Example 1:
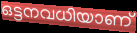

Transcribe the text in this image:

ഒട്ടനവധിയാണ്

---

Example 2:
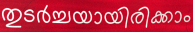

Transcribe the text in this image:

തുടർച്ചയായിരിക്കാം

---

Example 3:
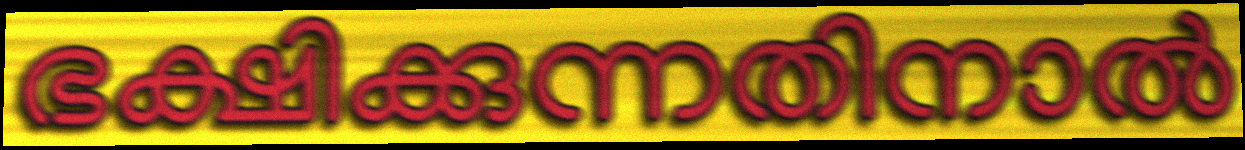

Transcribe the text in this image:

ഭക്ഷിക്കുന്നതിനാൽ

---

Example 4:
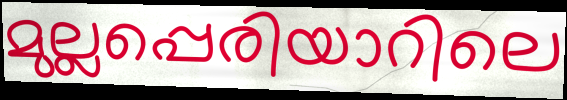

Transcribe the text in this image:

മുല്ലപ്പെരിയാറിലെ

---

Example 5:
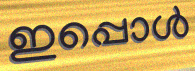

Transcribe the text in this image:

ഇപ്പൊൾ